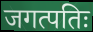
जगत्पतिः